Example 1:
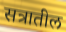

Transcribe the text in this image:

सत्रातील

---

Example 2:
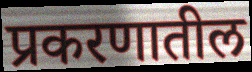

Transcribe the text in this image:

प्रकरणातील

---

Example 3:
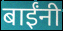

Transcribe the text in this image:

बाईंनी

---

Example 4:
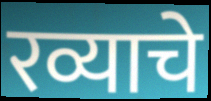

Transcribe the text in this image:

रव्याचे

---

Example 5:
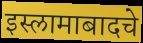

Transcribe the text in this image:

इस्लामाबादचे